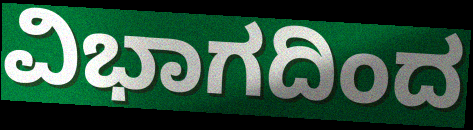
ವಿಭಾಗದಿಂದ